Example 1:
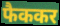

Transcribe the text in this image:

फैककर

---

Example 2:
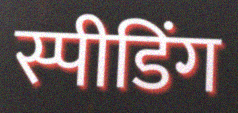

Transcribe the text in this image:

स्‍पीडिंग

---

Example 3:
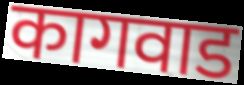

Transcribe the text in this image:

कागवाड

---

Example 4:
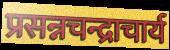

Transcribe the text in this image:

प्रसन्नचन्द्राचार्य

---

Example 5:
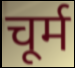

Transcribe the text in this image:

चूर्म